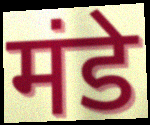
मंडे